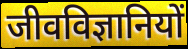
जीवविज्ञानियों